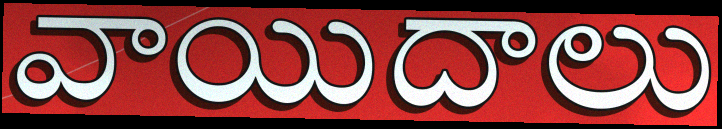
వాయిదాలు